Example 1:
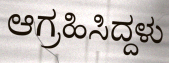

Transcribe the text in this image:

ಆಗ್ರಹಿಸಿದ್ದಳು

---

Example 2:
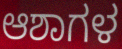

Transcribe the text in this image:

ಆಶಾಗಳ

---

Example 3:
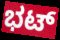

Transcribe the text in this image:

ಭಟ್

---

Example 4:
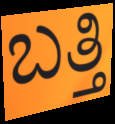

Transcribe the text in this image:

ಬತ್ತಿ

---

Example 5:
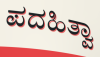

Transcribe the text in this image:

ಪದಹಿತ್ವಾ